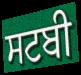
ਸਟਬੀ